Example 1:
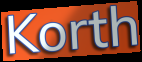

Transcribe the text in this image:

Korth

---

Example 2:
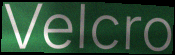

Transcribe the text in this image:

Velcro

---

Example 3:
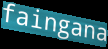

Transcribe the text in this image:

faingana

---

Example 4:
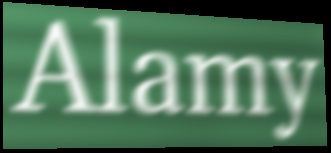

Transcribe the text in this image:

Alamy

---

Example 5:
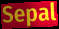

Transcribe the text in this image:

Sepal